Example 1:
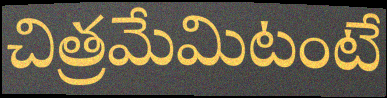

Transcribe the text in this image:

చిత్రమేమిటంటే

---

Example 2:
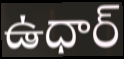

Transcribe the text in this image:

ఉధార్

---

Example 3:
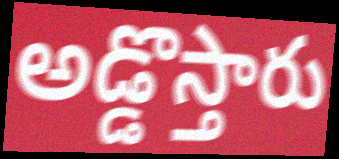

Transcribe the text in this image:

అడ్డొస్తారు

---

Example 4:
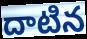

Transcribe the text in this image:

దాటిన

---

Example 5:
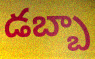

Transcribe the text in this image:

డబ్బా